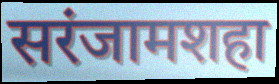
सरंजामशहा